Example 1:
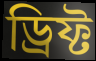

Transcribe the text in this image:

ড্রিফ্ট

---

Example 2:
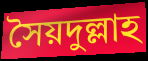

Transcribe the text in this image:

সৈয়দুল্লাহ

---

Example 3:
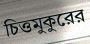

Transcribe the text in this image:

চিত্তমুকুরের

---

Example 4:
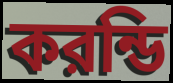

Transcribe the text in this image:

করন্ডি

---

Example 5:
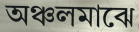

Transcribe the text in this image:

অঞ্চলমাঝে